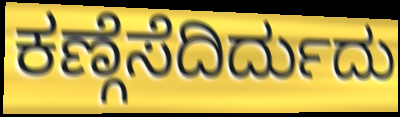
ಕಣ್ಗೆಸೆದಿರ್ದುದು